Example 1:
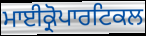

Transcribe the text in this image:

ਮਾਈਕ੍ਰੋਪਾਰਟਿਕਲ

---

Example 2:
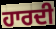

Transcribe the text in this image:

ਹਾਰਦੀ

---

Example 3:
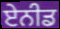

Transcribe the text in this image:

ਏਨੀਡ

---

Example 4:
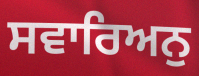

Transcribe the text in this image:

ਸਵਾਰਿਅਨੁ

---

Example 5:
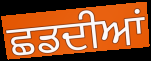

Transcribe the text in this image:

ਛਡਦੀਆਂ